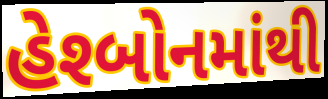
હેશ્બોનમાંથી